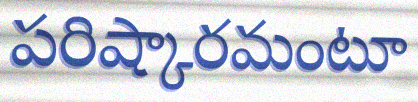
పరిష్కారమంటూ